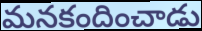
మనకందించాడు